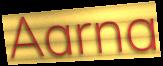
Aarna